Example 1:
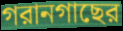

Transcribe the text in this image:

গরানগাছের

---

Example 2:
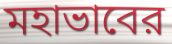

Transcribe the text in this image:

মহাভাবের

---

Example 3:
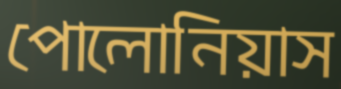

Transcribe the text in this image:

পোলোনিয়াস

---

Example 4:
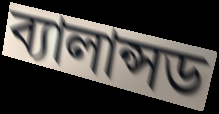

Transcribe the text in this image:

ব্যালান্সড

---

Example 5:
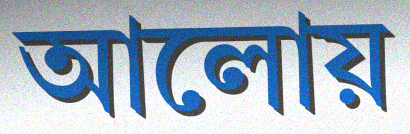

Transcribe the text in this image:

আলোয়